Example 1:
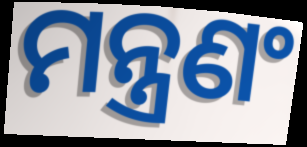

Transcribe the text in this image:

ମନ୍ତ୍ରଣଂ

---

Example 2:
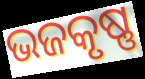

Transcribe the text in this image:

ଭଜକୃଷ୍ଣ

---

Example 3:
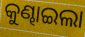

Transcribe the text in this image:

କୁଣ୍ଢାଇଲା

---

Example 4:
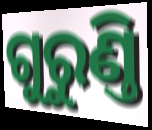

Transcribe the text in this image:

ଗୁରୁଣ୍ତି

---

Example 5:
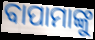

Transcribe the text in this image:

ବାପାମାଙ୍କୁ